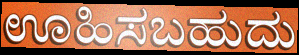
ಊಹಿಸಬಹುದು